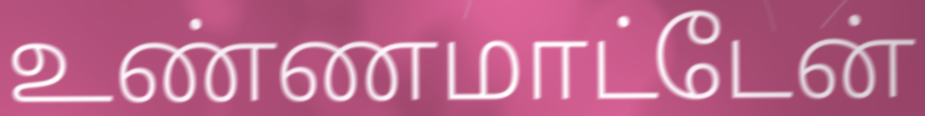
உண்ணமாட்டேன்